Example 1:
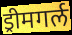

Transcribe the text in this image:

ड्रीमगर्ल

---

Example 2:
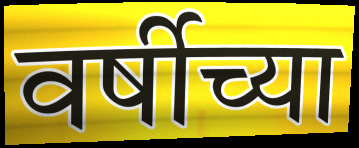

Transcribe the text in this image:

वर्षीच्या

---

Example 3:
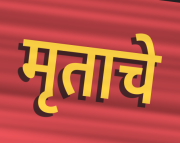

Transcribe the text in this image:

मृताचे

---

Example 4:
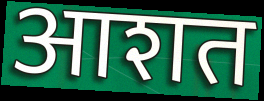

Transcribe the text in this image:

आशत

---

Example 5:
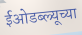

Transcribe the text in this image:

ईओडब्ल्यूच्या